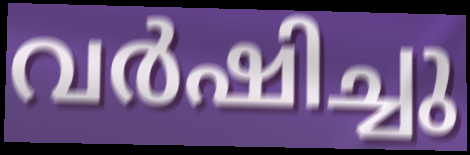
വർഷിച്ചു